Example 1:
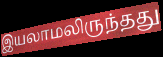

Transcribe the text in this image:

இயலாமலிருந்தது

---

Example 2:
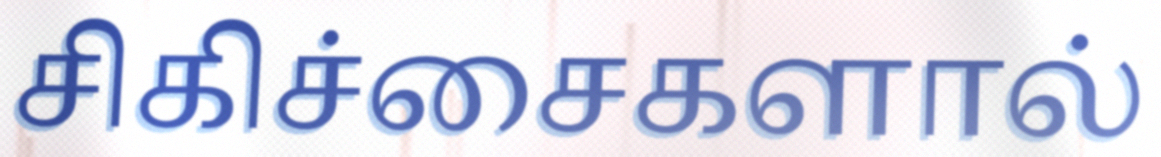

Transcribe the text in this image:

சிகிச்சைகளால்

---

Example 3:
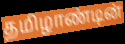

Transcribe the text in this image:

தமிழாண்டின்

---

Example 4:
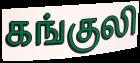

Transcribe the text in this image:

கங்குலி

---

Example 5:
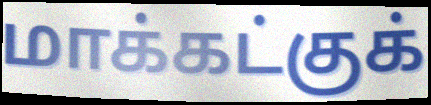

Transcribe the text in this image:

மாக்கட்குக்